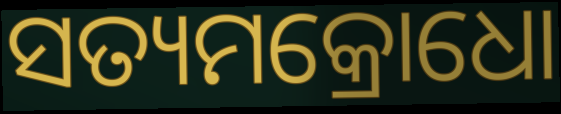
ସତ୍ୟମକ୍ରୋଧୋ